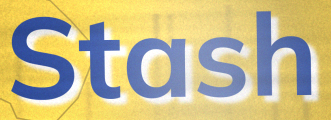
Stash